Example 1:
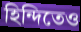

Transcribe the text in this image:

হিন্দিতেও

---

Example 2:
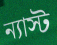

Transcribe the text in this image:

ন্যাস্ট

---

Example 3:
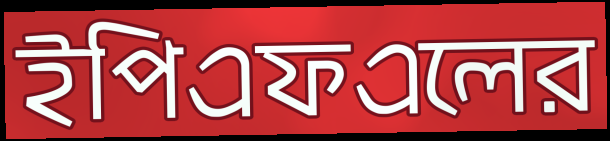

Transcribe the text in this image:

ইপিএফএলের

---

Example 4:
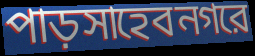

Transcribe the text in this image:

পাড়সাহেবনগরে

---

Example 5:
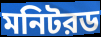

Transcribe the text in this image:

মনিটরড